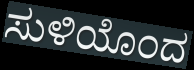
ಸುಳಿಯೊಂದ